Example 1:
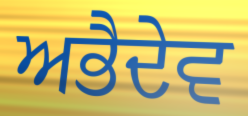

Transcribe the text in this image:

ਅਭੈਦੇਵ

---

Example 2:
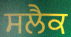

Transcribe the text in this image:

ਸਲੈਕ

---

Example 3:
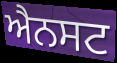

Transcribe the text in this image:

ਐਨਸਟ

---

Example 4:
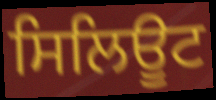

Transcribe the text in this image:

ਸਿਲਿਊਟ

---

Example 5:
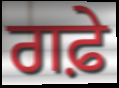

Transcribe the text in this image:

ਗਫ਼ੇ